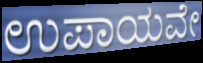
ಉಪಾಯವೇ